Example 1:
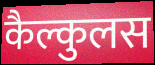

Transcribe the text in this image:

कैल्कुलस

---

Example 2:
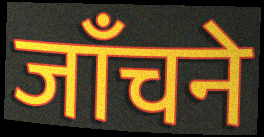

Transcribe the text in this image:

जाँचने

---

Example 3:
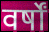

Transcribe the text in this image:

वर्षों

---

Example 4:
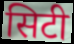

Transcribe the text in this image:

सिटी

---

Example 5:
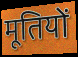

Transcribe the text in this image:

मूतियों